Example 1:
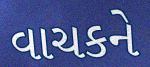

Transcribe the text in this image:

વાચકને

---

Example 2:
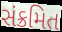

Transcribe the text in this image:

સંક્રમિત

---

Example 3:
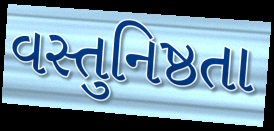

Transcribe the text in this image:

વસ્તુનિષ્ઠતા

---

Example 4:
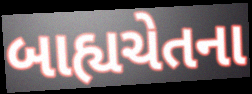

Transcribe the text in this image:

બાહ્યચેતના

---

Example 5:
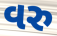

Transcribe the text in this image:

વરુ